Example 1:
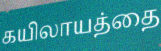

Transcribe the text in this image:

கயிலாயத்தை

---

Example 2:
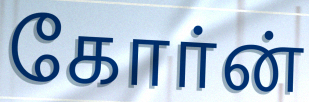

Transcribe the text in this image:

கோர்ன்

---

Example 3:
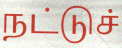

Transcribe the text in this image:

நட்டுச்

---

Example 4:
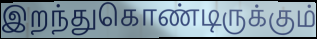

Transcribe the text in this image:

இறந்துகொண்டிருக்கும்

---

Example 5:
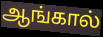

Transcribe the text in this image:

ஆங்கால்